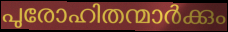
പുരോഹിതന്മാർക്കും